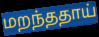
மறந்ததாய்